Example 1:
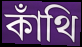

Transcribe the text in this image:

কাঁথি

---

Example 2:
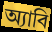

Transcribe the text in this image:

অ্যাবি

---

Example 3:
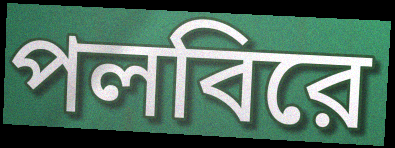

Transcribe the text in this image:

পলবিরে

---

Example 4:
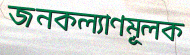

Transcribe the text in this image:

জনকল্যাণমূলক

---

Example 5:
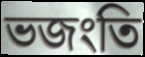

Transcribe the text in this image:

ভজংতি